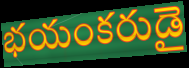
భయంకరుడై